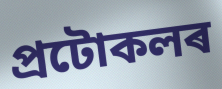
প্ৰটোকলৰ